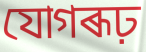
যোগৰূঢ়